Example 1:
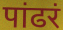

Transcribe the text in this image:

पांढरं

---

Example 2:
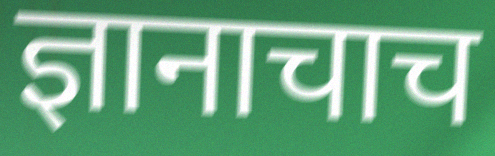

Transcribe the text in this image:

ज्ञानाचाच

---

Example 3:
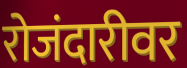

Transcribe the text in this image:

रोजंदारीवर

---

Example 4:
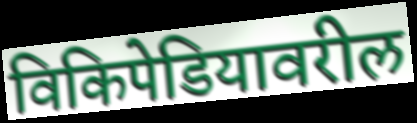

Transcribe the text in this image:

विकिपेडियावरील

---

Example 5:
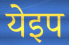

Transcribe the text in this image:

येइप